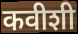
कवीशी